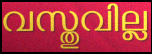
വസ്തുവില്ല